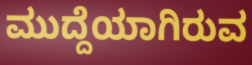
ಮುದ್ದೆಯಾಗಿರುವ